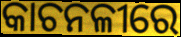
କାଚନଳୀରେ